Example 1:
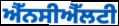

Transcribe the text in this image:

ਐੱਨਸੀਐੱਲਟੀ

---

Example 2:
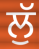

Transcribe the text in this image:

ਲੁੱ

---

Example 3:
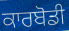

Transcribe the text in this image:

ਕਾਰਬੋਡੀ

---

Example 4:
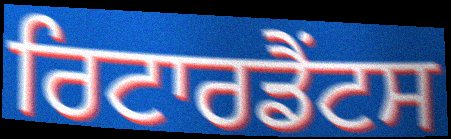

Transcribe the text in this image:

ਰਿਟਾਰਡੈਂਟਸ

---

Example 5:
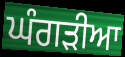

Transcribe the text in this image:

ਘੰਗੜੀਆ